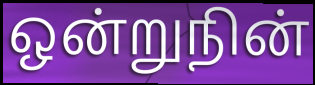
ஒன்றுநின்